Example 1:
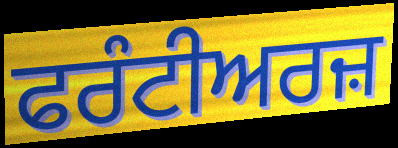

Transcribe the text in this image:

ਫਰੰਟੀਅਰਜ਼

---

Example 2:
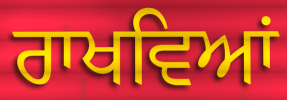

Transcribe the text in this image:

ਰਾਖਵਿਆਂ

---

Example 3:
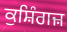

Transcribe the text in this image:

ਕੁਸ਼ਿੰਗਜ਼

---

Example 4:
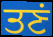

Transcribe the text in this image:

ਤਣਂ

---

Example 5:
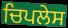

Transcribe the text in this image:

ਚਿਪਲੇਸ